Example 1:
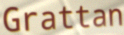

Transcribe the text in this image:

Grattan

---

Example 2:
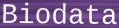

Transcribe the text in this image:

Biodata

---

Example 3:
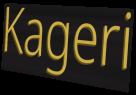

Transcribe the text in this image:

Kageri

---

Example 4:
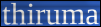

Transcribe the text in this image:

thiruma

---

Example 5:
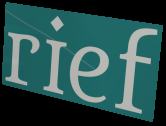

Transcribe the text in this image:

rief